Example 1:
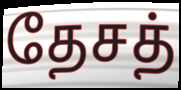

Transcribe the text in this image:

தேசத்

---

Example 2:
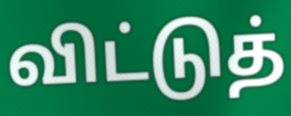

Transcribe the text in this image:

விட்டுத்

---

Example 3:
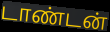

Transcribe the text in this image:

டாண்டன்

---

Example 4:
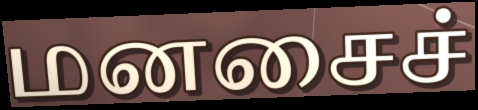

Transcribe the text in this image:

மனசைச்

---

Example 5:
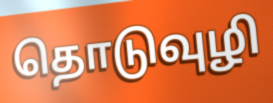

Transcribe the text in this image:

தொடுவுழி